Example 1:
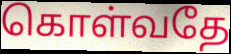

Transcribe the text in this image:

கொள்வதே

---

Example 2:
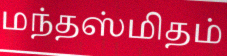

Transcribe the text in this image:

மந்தஸ்மிதம்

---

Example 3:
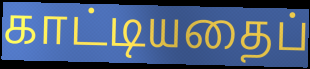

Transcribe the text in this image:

காட்டியதைப்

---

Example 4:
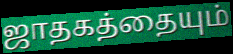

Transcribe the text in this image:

ஜாதகத்தையும்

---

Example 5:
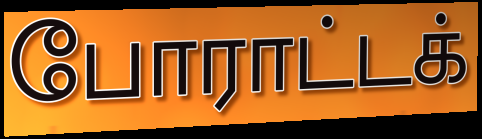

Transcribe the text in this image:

போராட்டக்